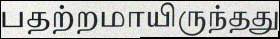
பதற்றமாயிருந்தது